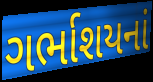
ગર્ભાશયનાં